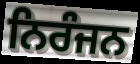
ਨਿਰੰਜਨ